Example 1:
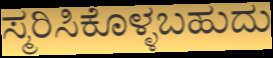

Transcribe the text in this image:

ಸ್ಮರಿಸಿಕೊಳ್ಳಬಹುದು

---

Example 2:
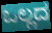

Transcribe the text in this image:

ಒಲ್ಲದ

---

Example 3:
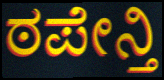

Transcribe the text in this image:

ಠಪೇನ್ತಿ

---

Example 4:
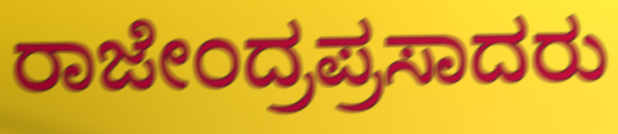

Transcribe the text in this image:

ರಾಜೇಂದ್ರಪ್ರಸಾದರು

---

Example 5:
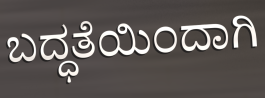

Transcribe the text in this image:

ಬದ್ಧತೆಯಿಂದಾಗಿ